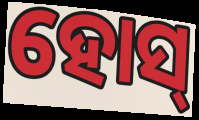
ହୋସ୍